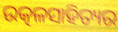
ଉତ୍କଳସାହିତ୍ୟର